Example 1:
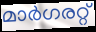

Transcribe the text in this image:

മാർഗരറ്റ്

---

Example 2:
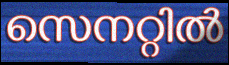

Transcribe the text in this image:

സെനറ്റിൽ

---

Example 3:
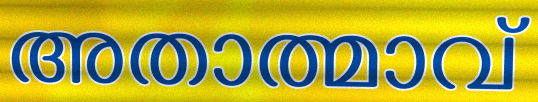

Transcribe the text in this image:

അതാത്മാവ്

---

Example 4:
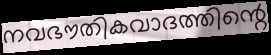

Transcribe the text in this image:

നവഭൗതികവാദത്തിന്റെ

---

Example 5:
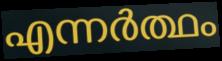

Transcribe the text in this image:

എന്നർത്ഥം